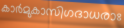
കാർമുകാസിഗദാധരാഃ